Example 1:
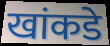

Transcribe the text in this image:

खांकडे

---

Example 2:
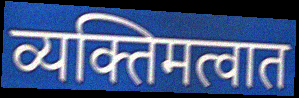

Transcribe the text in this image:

व्यक्तिमत्वात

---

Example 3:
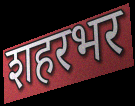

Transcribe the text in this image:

शहरभर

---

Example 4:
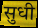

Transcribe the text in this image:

सुधी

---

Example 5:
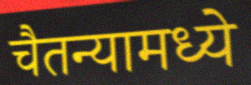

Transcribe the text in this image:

चैतन्यामध्ये